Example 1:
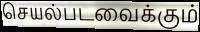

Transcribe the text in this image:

செயல்படவைக்கும்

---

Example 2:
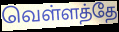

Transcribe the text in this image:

வெள்ளத்தே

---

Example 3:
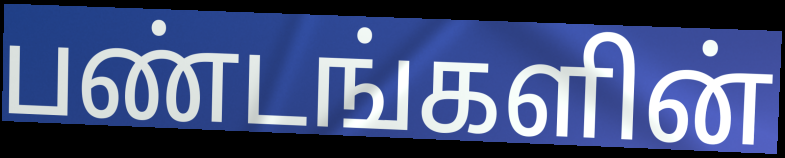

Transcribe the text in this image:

பண்டங்களின்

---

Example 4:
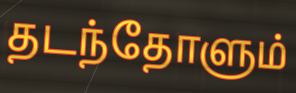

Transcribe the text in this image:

தடந்தோளும்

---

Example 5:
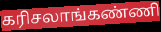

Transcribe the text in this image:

கரிசலாங்கண்ணி